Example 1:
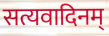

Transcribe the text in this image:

सत्यवादिनम्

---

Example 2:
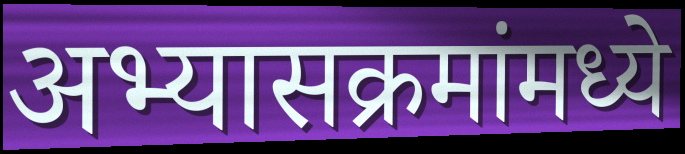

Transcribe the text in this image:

अभ्यासक्रमांमध्ये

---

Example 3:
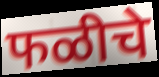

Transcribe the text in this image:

फळीचे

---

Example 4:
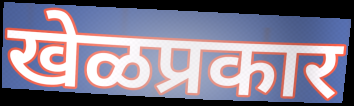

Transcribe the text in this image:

खेळप्रकार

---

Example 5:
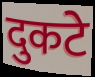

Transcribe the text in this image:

दुकटे